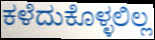
ಕಳೆದುಕೊಳ್ಳಲಿಲ್ಲ